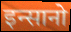
इन्सानो